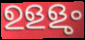
ഉളളും